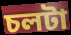
চলটা